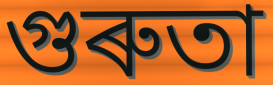
গুৰুতা